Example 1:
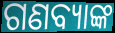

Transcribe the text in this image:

ଗଣବ୍ୟାଙ୍କ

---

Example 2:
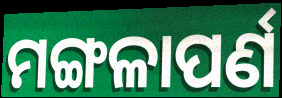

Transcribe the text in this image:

ମଙ୍ଗଳାପର୍ଣ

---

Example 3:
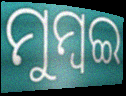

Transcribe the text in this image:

ମୁମ୍ବଇ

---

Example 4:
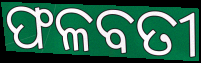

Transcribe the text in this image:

ଫଳବତୀ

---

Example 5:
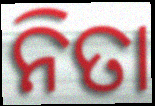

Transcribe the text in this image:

ନିତା